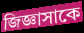
জিজ্ঞাসাকে